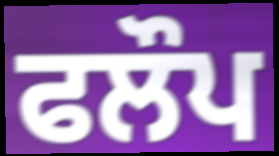
ਫਲੌਪ